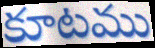
కూటము